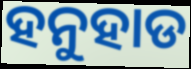
ହନୁହାଡ